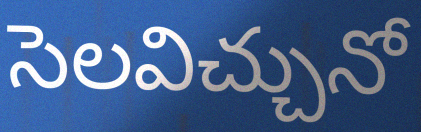
సెలవిచ్చునో